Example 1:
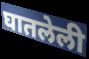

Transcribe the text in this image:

घातलेली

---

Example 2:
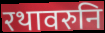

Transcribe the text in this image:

रथावरुनि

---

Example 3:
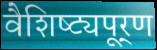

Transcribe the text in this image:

वैशिष्ट्यपूर्ण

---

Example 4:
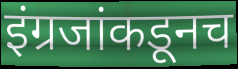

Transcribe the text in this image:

इंग्रजांकडूनच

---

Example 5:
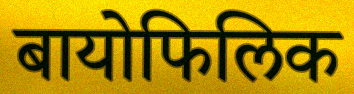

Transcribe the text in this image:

बायोफिलिक